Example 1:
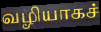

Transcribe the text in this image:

வழியாகச்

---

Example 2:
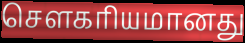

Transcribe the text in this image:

சௌகரியமானது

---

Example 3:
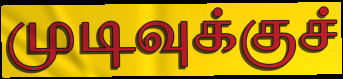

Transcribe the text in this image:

முடிவுக்குச்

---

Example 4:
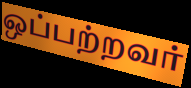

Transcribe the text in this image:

ஒப்பற்றவர்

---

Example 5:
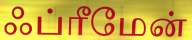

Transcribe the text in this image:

ஃப்ரீமேன்